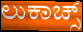
ಲುಕಾಚ್ಸ್